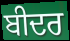
ਬੀਦਰ